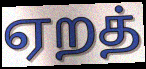
ஏறத்